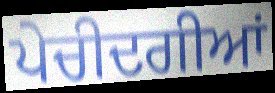
ਪੇਚੀਦਗੀਆਂ